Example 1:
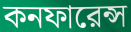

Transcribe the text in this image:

কনফারেন্স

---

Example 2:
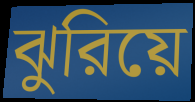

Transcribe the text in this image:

ঝুরিয়ে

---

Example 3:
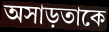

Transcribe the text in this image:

অসাড়তাকে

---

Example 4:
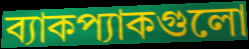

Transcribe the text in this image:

ব্যাকপ্যাকগুলো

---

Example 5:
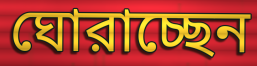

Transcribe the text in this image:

ঘোরাচ্ছেন